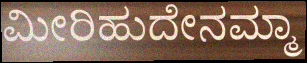
ಮೀರಿಹುದೇನಮ್ಮಾ